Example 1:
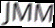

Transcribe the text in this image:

JMM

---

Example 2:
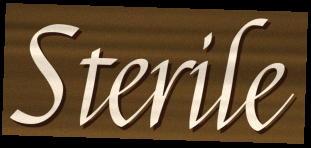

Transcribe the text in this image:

Sterile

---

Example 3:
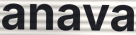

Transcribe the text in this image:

anava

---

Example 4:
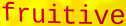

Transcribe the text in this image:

fruitive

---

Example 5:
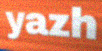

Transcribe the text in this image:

yazh